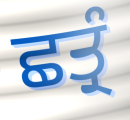
ਛਤ੍ਰੰ